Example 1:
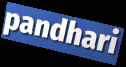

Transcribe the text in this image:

pandhari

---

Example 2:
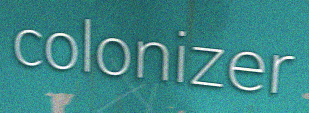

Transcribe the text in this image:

colonizer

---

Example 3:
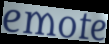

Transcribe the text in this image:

emote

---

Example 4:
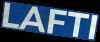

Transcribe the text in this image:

LAFTI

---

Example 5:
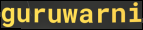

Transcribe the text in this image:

guruwarni